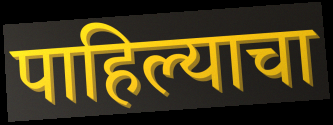
पाहिल्याचा